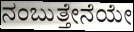
ನಂಬುತ್ತೇನೆಯೇ